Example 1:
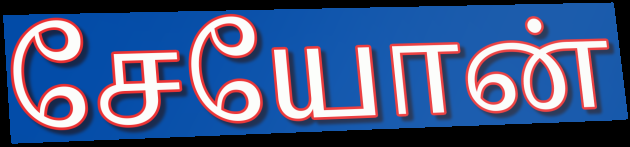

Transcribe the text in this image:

சேயோன்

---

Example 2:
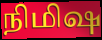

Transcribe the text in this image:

நிமிஷ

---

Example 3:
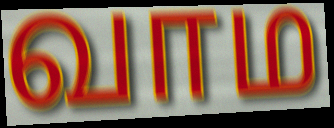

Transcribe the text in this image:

வாம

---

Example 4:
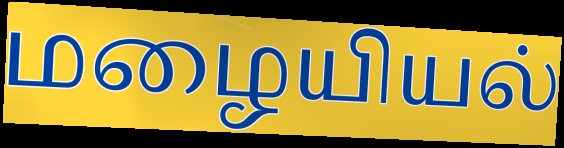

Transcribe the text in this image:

மழையியல்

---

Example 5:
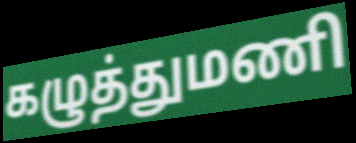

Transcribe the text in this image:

கழுத்துமணி